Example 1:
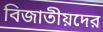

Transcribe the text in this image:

বিজাতীয়দের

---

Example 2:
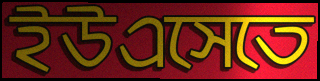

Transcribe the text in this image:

ইউএসেতে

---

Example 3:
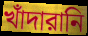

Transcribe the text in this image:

খাঁদারানি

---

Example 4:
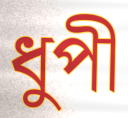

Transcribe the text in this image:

ধুপী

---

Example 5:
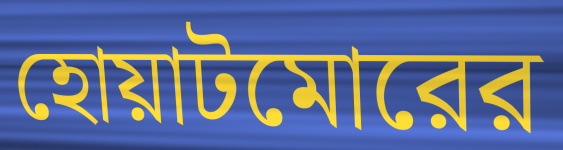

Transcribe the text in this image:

হোয়াটমোরের